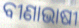
ବୀଣାଭାଷୀ